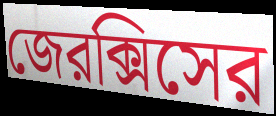
জেরক্সিসের